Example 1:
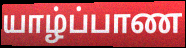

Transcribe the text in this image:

யாழ்ப்பாண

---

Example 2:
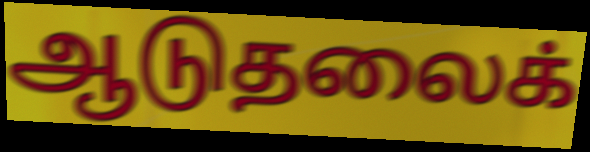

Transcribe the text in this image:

ஆடுதலைக்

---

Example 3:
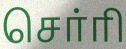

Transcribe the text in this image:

செர்ரி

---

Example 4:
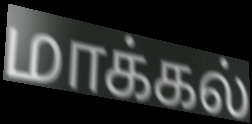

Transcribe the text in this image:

மாக்கல்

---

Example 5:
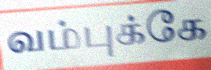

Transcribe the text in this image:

வம்புக்கே